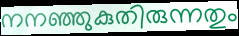
നനഞ്ഞുകുതിരുന്നതും